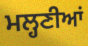
ਮਲ੍ਹਣੀਆਂ